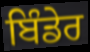
ਬਿੰਡੇਰ